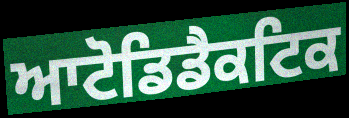
ਆਟੋਡਿਡੈਕਟਿਕ